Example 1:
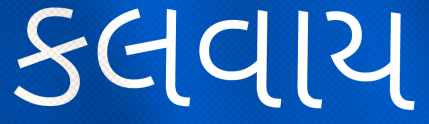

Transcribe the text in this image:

કલવાય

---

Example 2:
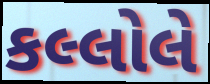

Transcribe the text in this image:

કલ્લોલે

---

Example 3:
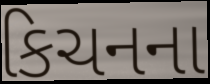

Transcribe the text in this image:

કિચનના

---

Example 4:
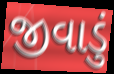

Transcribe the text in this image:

જીવાડું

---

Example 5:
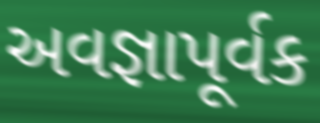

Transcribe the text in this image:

અવજ્ઞાપૂર્વક